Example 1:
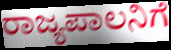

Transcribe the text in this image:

ರಾಜ್ಯಪಾಲನಿಗೆ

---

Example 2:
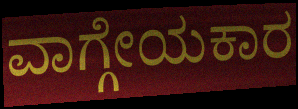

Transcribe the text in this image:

ವಾಗ್ಗೇಯಕಾರ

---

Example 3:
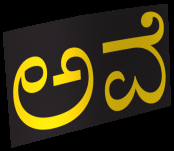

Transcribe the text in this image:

ಅವೆ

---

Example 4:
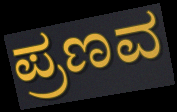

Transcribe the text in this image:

ಪ್ರಣವ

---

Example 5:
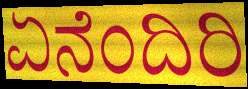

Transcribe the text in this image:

ಏನೆಂದಿರಿ